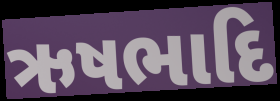
ઋષભાદિ